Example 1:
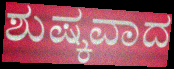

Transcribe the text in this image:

ಶುಷ್ಕವಾದ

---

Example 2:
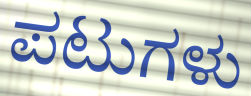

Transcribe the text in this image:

ಪಟುಗಳು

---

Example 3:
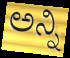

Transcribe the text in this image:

ಅನ್ನಿ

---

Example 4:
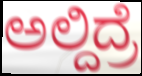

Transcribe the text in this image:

ಅಲ್ದಿದ್ರೆ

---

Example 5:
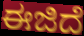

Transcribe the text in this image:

ಈಜಿದೆ